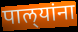
पाल्यांना